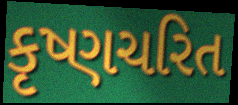
કૃષ્ણચરિત